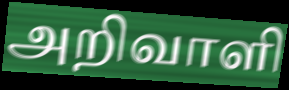
அறிவாளி